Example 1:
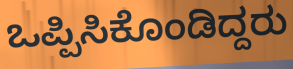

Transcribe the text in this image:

ಒಪ್ಪಿಸಿಕೊಂಡಿದ್ದರು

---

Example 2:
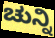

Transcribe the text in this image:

ಚುನ್ನಿ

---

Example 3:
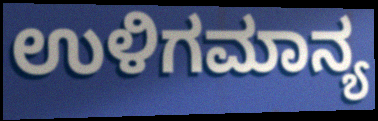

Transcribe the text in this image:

ಉಳಿಗಮಾನ್ಯ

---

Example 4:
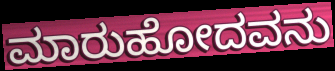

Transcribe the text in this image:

ಮಾರುಹೋದವನು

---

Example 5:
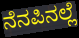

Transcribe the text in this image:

ನೆನಪಿನಲ್ಲೆ